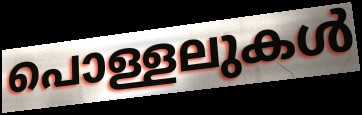
പൊള്ളലുകൾ